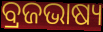
ବ୍ରଜଭାଷ୍ୟ